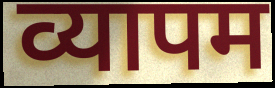
व्यापम